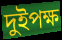
দুইপক্ষ